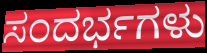
ಸಂದರ್ಭಗಳು